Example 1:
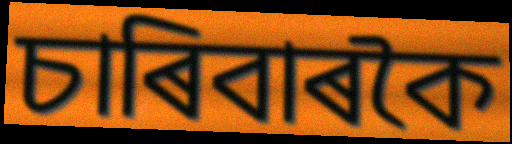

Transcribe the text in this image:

চাৰিবাৰকৈ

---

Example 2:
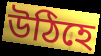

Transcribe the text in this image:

উঠিহে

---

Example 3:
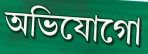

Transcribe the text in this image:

অভিযোগো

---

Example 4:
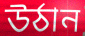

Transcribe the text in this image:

উঠান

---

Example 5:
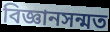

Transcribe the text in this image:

বিজ্ঞানসন্মত